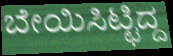
ಬೇಯಿಸಿಟ್ಟಿದ್ದ